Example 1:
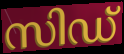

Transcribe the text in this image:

സിഡ്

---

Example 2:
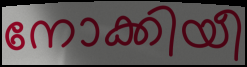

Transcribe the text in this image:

നോക്കിയീ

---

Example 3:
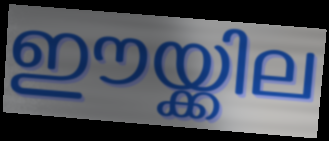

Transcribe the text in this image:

ഈയ്ക്കില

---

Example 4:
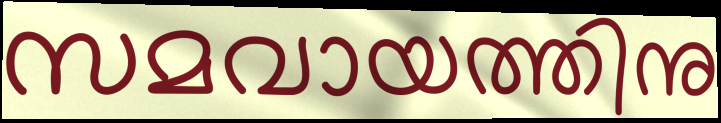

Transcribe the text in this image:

സമവായത്തിനു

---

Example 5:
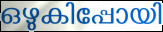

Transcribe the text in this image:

ഒഴുകിപ്പോയി